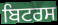
ਬਿਟਰਸ